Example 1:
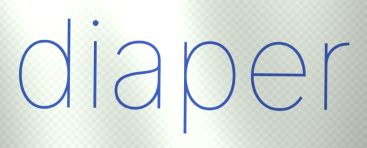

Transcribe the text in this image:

diaper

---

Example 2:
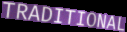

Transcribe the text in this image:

TRADITIONAL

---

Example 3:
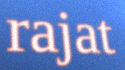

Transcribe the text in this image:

rajat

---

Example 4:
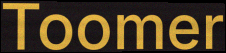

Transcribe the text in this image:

Toomer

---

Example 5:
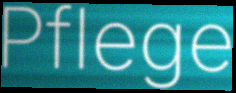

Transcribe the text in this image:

Pflege